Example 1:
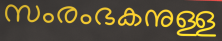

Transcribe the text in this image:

സംരംഭകനുള്ള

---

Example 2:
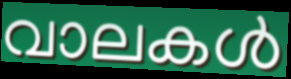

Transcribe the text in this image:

വാലകൾ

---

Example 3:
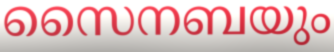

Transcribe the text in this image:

സൈനബയും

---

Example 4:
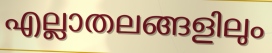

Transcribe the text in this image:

എല്ലാതലങ്ങളിലും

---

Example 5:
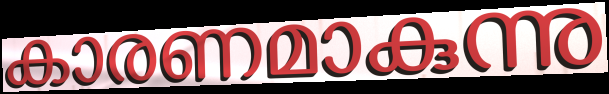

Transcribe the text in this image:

കാരണമാകുന്നു